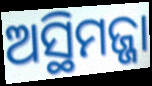
ଅସ୍ଥିମଜ୍ଜା